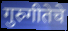
गुरुगीतेचे